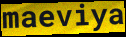
maeviya